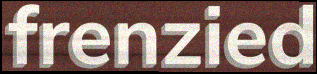
frenzied